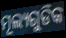
ମୂଲ୍ୟଗୁଡିକ